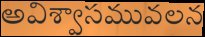
అవిశ్వాసమువలన